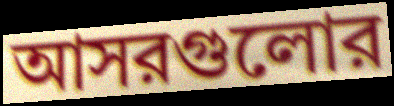
আসরগুলোর